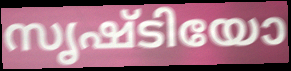
സൃഷ്ടിയോ